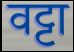
वट्टा